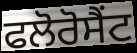
ਫਲੋਰੋਸੈਂਟ